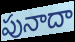
పునాదా